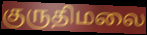
குருதிமலை